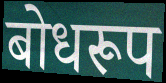
बोधरूप